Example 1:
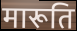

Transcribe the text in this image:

मारूति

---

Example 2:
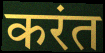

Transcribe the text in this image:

करंत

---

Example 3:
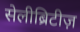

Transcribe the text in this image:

सेलीब्रिटीज़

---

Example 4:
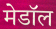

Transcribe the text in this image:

मेडॉल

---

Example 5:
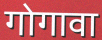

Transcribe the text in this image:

गोगावा